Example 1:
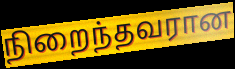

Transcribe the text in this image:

நிறைந்தவரான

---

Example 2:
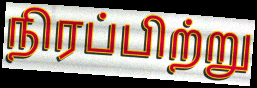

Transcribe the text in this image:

நிரப்பிற்று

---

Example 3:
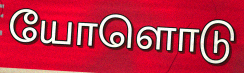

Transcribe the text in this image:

யோளொடு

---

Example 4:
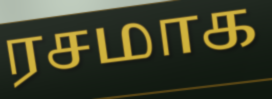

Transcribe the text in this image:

ரசமாக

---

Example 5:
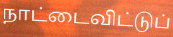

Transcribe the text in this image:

நாட்டைவிட்டுப்